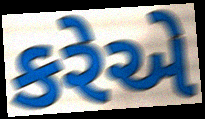
કરેએ